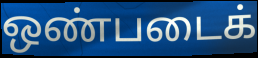
ஒண்படைக்